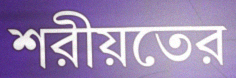
শরীয়তের